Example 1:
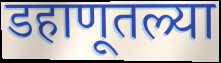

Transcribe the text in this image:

डहाणूतल्या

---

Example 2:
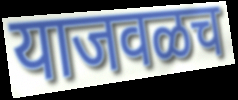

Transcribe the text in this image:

याजवळच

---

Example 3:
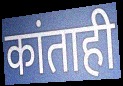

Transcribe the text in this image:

कांताही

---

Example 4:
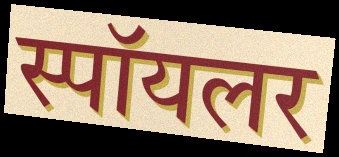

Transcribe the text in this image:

स्पॉयलर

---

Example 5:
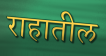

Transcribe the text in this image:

राहातील